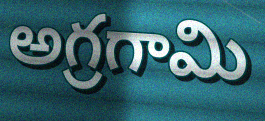
అగ్రగామి